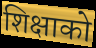
शिक्षाको